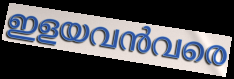
ഇളയവൻവരെ